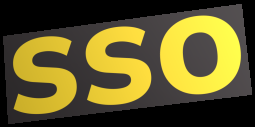
sso